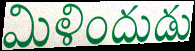
మిళిందుడు